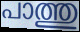
പാത്തു